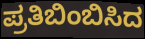
ಪ್ರತಿಬಿಂಬಿಸಿದ